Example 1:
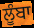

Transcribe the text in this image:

ਲੂੰਬਾ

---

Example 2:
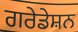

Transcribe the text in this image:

ਗਰੇਡੇਸ਼ਨ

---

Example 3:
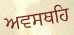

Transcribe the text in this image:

ਅਵਸਥਹਿ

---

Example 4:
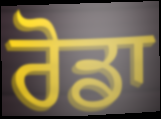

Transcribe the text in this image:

ਰੋਡਾ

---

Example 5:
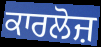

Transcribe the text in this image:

ਕਾਰਲੋਜ਼